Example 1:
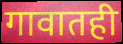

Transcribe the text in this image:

गावातही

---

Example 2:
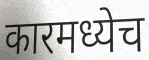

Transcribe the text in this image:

कारमध्येच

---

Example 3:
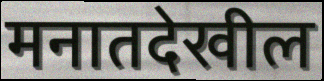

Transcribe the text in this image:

मनातदेखील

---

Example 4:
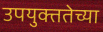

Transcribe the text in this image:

उपयुक्ततेच्या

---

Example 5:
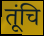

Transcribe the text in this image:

तूंचि